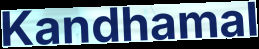
Kandhamal